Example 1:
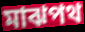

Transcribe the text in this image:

মাঝপথ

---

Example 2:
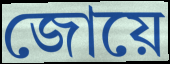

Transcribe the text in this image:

জোয়ে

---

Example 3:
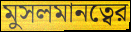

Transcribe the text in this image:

মুসলমানত্বের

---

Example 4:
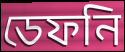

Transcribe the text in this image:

ডেফনি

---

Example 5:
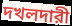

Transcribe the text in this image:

দখলদারী